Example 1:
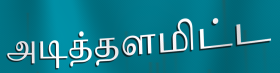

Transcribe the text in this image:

அடித்தளமிட்ட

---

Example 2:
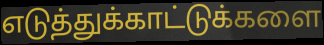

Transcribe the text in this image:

எடுத்துக்காட்டுக்களை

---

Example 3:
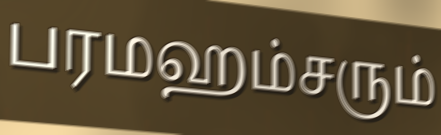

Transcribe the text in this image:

பரமஹம்சரும்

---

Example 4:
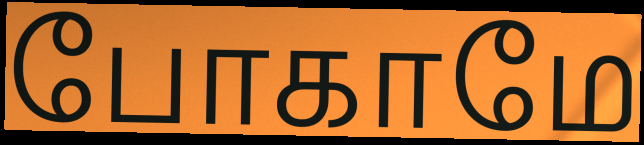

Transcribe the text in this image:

போகாமே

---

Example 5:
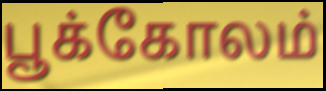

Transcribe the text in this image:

பூக்கோலம்